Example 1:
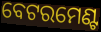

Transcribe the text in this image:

ବେଟରମେଣ୍ଟ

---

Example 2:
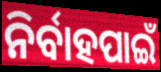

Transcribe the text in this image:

ନିର୍ବାହପାଇଁ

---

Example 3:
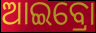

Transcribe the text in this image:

ଆଇବ୍ରୋ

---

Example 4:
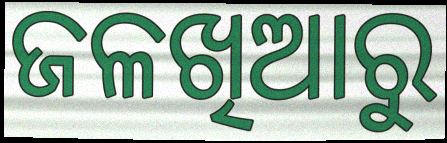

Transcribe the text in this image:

ଜଳଖିଆରୁ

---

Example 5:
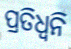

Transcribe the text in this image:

ପ୍ରତିଧ୍ବନି